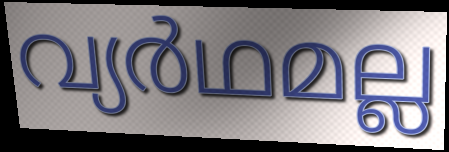
വ്യർഥമല്ല